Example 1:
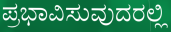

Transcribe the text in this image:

ಪ್ರಭಾವಿಸುವುದರಲ್ಲಿ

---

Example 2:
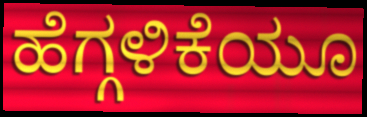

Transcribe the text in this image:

ಹೆಗ್ಗಳಿಕೆಯೂ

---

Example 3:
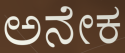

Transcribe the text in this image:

ಅನೇಕ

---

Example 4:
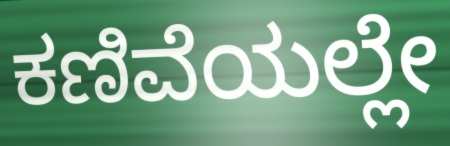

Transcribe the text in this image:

ಕಣಿವೆಯಲ್ಲೇ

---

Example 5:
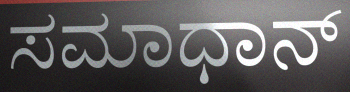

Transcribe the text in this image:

ಸಮಾಧಾನ್